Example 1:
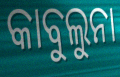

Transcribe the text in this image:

କାବୁଲୁନା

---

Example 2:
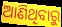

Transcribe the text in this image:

ଆଣିଥିବାରୁ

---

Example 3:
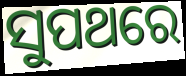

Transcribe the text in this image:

ସୁପଥରେ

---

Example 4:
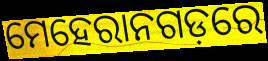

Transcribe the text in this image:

ମେହେରାନଗଡ଼ରେ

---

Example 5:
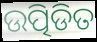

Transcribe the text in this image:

ଉତ୍ପିଡିତ